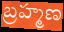
బ్రహ్మణ